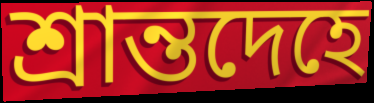
শ্রান্তদেহে